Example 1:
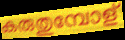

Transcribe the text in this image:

കരുതുമ്പോള്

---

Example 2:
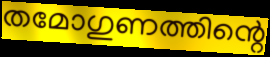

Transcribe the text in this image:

തമോഗുണത്തിന്റെ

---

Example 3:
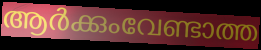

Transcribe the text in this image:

ആർക്കുംവേണ്ടാത്ത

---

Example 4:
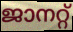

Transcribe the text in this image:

ജാനറ്റ്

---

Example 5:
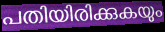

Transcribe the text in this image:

പതിയിരിക്കുകയും